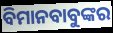
ବିମାନବାବୁଙ୍କର